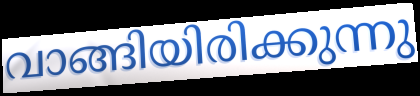
വാങ്ങിയിരിക്കുന്നു